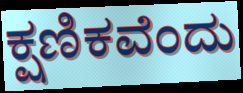
ಕ್ಷಣಿಕವೆಂದು